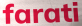
farati